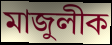
মাজুলীক